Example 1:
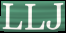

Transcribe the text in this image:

LLJ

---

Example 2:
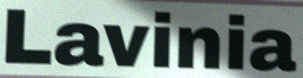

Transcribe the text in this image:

Lavinia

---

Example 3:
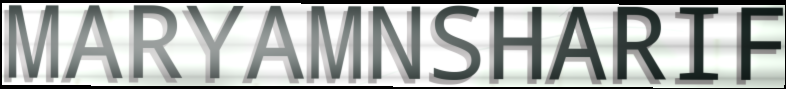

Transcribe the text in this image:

MARYAMNSHARIF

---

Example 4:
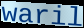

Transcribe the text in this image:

waril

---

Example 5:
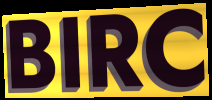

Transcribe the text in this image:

BIRC